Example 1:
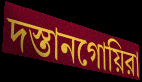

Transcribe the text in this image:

দস্তানগোয়িরা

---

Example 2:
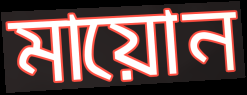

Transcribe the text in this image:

মায়োন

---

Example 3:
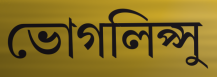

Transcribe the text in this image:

ভোগলিপ্সু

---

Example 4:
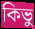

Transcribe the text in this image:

কিভু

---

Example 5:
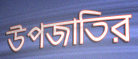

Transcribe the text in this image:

উপজাতির